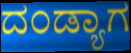
ದಂಡ್ಯಾಗ